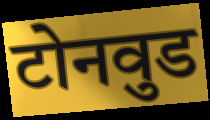
टोनवुड